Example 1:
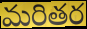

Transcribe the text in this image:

మరితర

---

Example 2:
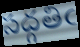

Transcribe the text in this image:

సద్గతిఁ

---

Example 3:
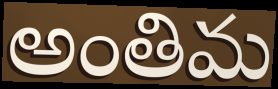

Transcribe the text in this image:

అంతిమ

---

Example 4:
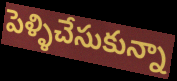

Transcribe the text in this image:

పెళ్ళిచేసుకున్నా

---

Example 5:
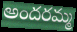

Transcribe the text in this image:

అందరమ్మ